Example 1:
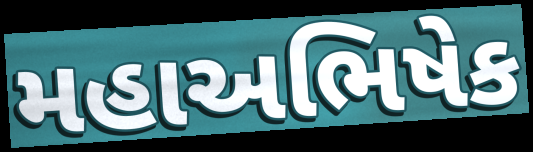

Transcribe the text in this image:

મહાઅભિષેક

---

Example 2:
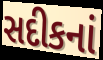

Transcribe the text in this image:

સદીકનાં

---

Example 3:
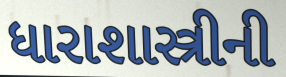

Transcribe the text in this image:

ધારાશાસ્ત્રીની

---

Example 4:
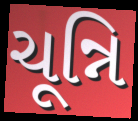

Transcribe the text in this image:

ચૂન્નિ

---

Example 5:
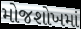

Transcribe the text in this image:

મોજશોખમાં